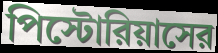
পিস্টোরিয়াসের